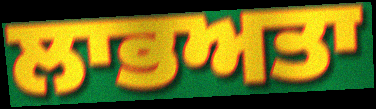
ਲਾਭਅਤਾ